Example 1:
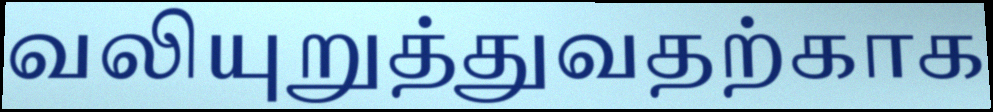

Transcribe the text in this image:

வலியுறுத்துவதற்காக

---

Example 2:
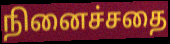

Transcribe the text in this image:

நினைச்சதை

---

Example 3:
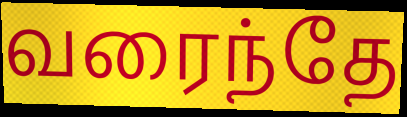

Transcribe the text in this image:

வரைந்தே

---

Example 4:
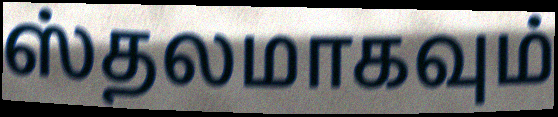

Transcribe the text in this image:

ஸ்தலமாகவும்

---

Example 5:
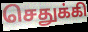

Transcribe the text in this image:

செதுக்கி